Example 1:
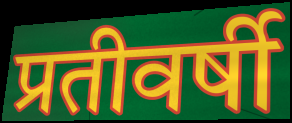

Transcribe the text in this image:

प्रतीवर्षी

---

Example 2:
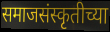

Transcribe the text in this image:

समाजसंस्कृतीच्या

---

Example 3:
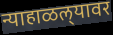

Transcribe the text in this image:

न्याहाळल्यावर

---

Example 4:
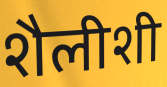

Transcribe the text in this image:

शैलीशी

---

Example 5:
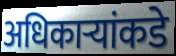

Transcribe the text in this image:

अधिकाऱ्यांकडे